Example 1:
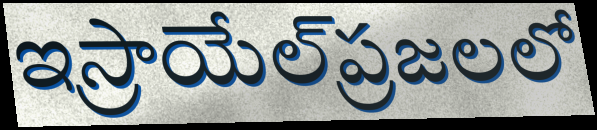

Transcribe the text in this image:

ఇస్రాయేల్‌ప్రజలలో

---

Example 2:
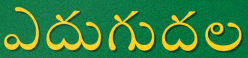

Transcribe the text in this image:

ఎదుగుదల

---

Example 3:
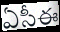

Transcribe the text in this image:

ఏసీఈ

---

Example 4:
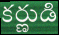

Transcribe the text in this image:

కర్ణుడి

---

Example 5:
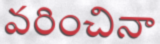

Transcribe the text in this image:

వరించినా